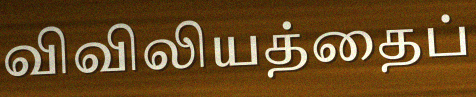
விவிலியத்தைப்